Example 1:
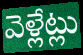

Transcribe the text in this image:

వెళ్లేట్లు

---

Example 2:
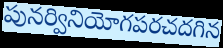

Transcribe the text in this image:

పునర్వినియోగపరచదగిన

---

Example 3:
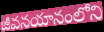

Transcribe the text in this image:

జీవనయానంలోని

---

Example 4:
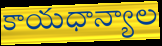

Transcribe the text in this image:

కాయధాన్యాల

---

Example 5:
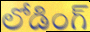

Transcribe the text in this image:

లోడింగ్